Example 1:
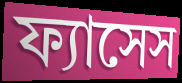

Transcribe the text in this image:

ফ্যাসেস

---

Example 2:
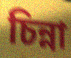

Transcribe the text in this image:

চিন্না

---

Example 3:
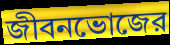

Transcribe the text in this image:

জীবনভোজের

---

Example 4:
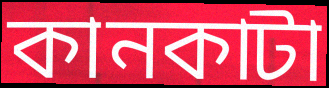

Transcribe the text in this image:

কানকাটা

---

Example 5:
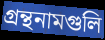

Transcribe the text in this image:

গ্রন্থনামগুলি